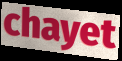
chayet